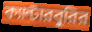
ক্যান্টারবুরির